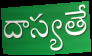
దాస్యతే